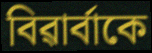
বিৱাৰ্বাকে